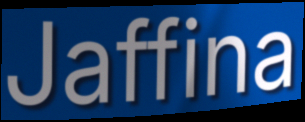
Jaffina